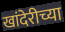
खांदेरीच्या